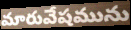
మారువేషమును